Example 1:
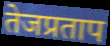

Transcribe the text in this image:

तेजप्रताप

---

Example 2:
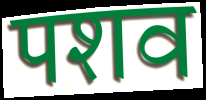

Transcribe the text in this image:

पशव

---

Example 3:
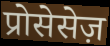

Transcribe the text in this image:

प्रोसेसेज़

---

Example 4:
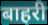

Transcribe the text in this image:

बाहरी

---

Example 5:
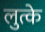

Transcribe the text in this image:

लुत्के